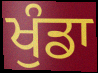
ਖੁੰਡਾ